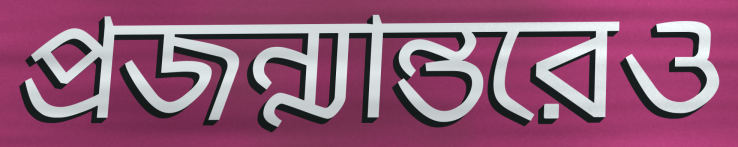
প্রজন্মান্তরেও